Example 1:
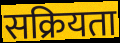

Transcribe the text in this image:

सक्रियता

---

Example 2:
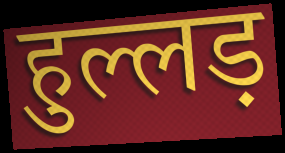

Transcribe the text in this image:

हुल्लड़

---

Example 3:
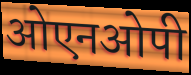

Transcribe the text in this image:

ओएनओपी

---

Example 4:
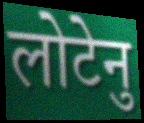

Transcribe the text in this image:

लोटेनु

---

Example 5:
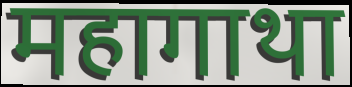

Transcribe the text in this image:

महागाथा